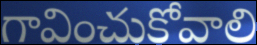
గావించుకోవాలి